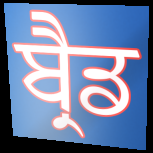
ਬ੍ਰੈਡ